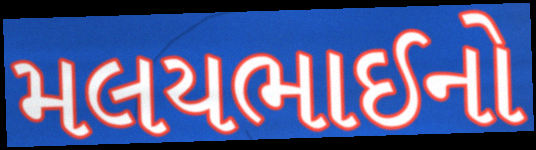
મલયભાઈનો